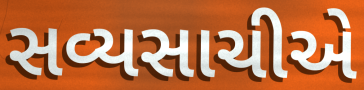
સવ્યસાચીએ